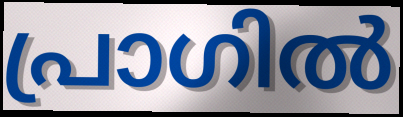
പ്രാഗിൽ